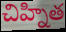
చిహ్నిత